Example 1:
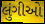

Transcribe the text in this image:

લુંગીઓ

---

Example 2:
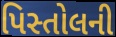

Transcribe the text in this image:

પિસ્તોલની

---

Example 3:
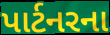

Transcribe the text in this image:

પાર્ટનરના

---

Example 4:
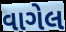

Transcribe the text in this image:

વાગેલ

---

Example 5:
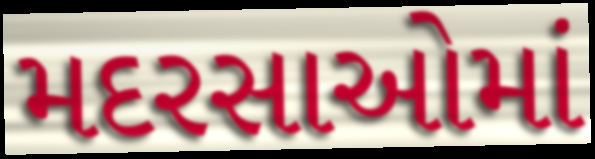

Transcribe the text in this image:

મદરસાઓમાં